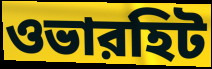
ওভারহিট